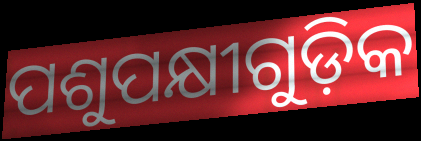
ପଶୁପକ୍ଷୀଗୁଡ଼ିକ